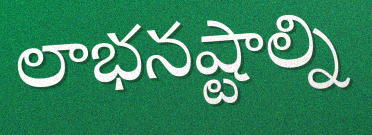
లాభనష్టాల్ని